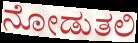
ನೋಡುತಲಿ